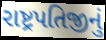
રાષ્ટ્રપતિજીનું